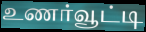
உணர்வூட்டி